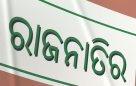
ରାଜନାତିର